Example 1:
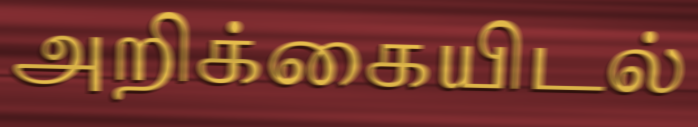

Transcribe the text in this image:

அறிக்கையிடல்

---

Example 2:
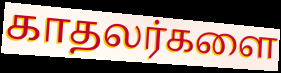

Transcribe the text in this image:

காதலர்களை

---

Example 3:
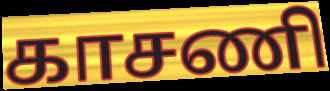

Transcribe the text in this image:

காசணி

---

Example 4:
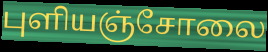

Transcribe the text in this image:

புளியஞ்சோலை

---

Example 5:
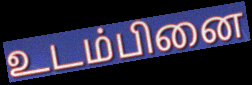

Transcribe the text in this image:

உடம்பினை